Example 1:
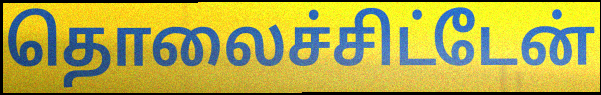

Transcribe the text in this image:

தொலைச்சிட்டேன்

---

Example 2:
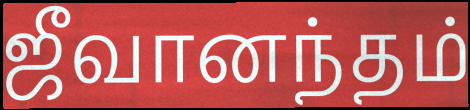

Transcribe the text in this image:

ஜீவானந்தம்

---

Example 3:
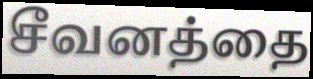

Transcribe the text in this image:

சீவனத்தை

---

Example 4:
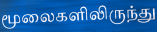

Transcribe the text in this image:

மூலைகளிலிருந்து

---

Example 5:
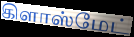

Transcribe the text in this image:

கிளாஸ்மேட்